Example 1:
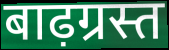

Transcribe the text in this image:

बाढ़ग्रस्त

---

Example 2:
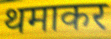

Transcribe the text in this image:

थमाकर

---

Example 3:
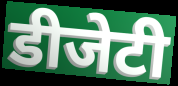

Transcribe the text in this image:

डीजेटी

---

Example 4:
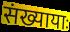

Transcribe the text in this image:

संख्यायाः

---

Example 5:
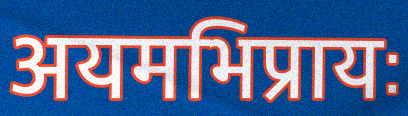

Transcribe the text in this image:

अयमभिप्रायः